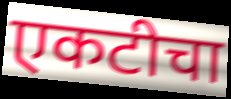
एकटीचा